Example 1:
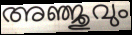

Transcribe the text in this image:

അഞ്ജുവും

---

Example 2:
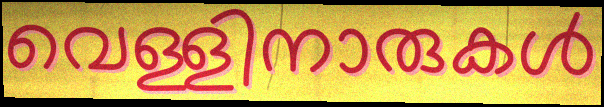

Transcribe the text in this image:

വെള്ളിനാരുകൾ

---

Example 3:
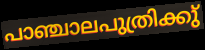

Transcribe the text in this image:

പാഞ്ചാലപുത്രിക്കു്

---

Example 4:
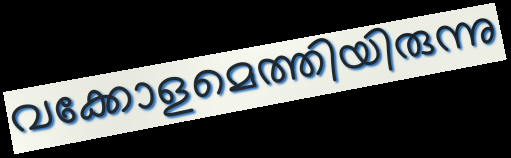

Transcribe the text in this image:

വക്കോളമെത്തിയിരുന്നു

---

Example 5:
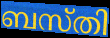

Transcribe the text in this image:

ബസ്തി